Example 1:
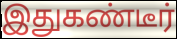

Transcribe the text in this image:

இதுகண்டீர்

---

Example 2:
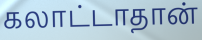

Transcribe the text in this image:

கலாட்டாதான்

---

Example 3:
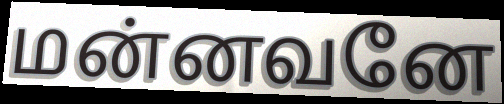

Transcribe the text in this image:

மன்னவனே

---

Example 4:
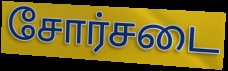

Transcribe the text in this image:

சோர்சடை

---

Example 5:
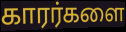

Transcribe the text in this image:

காரர்களை